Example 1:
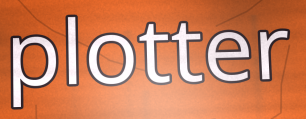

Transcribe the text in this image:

plotter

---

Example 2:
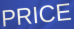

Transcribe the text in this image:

PRICE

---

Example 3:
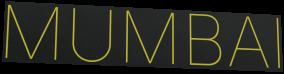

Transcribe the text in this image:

MUMBAI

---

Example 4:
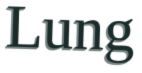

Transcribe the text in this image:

Lung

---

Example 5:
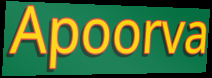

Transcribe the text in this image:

Apoorva